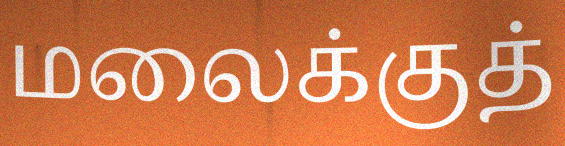
மலைக்குத்